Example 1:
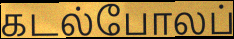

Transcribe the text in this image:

கடல்போலப்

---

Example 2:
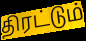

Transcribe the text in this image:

திரட்டும்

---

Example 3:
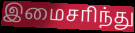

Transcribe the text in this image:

இமைசரிந்து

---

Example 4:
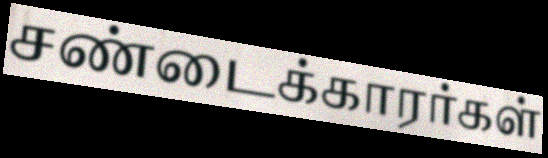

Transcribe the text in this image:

சண்டைக்காரர்கள்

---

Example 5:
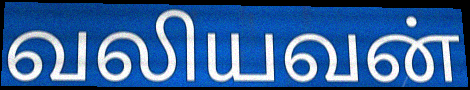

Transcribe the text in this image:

வலியவன்